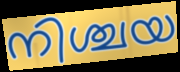
നിശ്ചയ